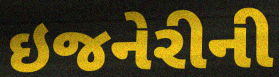
ઇજનેરીની